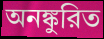
অনঙ্কুরিত